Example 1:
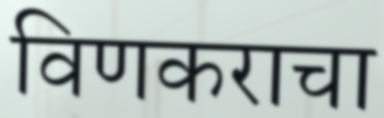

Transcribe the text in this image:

विणकराचा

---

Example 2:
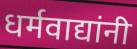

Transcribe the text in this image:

धर्मवाद्यांनी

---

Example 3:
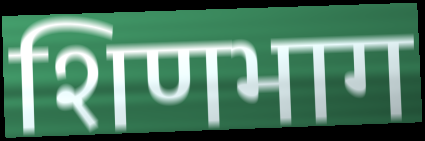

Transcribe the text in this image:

शिणभाग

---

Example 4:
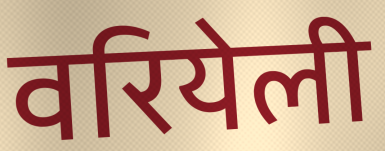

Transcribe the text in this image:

वरियेली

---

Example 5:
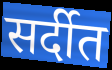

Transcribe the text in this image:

सर्दीत